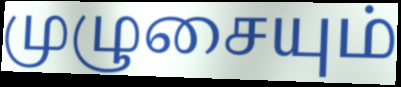
முழுசையும்